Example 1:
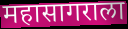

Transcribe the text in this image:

महासागराला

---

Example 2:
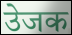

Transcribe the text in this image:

उेजक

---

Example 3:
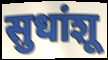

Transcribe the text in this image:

सुधांशू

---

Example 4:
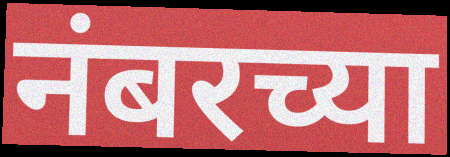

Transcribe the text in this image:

नंबरच्या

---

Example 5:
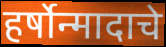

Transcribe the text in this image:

हर्षोन्मादाचे